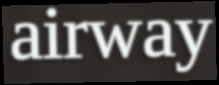
airway